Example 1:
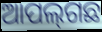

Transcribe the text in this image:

ଆପଲ୍‍ଗଛ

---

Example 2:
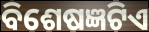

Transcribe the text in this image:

ବିଶେଷଜ୍ଞଟିଏ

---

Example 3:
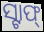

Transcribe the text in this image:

ସ୍ଟାଫ୍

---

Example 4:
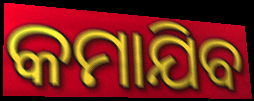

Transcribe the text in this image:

କମାଯିବ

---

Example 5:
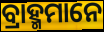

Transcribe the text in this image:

ବ୍ରାହ୍ମମାନେ